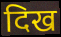
दिख